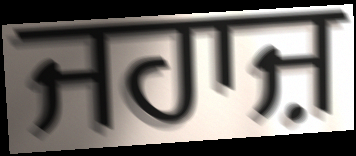
ਜਹਾਜ਼